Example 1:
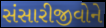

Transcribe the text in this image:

સંસારીજીવોને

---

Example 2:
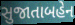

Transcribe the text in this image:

સુજાતાબહેન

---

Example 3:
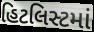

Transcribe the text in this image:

હિટલિસ્ટમાં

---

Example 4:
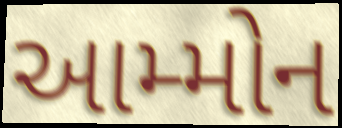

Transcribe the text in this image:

આમ્મોન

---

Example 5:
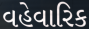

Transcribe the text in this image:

વહેવારિક